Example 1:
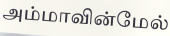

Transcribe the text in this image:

அம்மாவின்மேல்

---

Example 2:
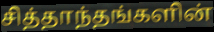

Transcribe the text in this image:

சித்தாந்தங்களின்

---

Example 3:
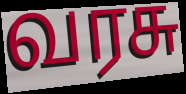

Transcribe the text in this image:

வரசு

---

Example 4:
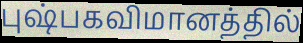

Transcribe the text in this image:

புஷ்பகவிமானத்தில்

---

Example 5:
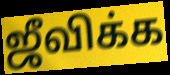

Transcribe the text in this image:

ஜீவிக்க